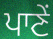
ਪਾਣੇਂ